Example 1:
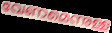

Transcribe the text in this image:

വേണമെന്നുള്ള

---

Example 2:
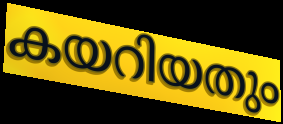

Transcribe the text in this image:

കയറിയതും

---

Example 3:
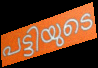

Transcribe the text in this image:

പട്ടിയുടെ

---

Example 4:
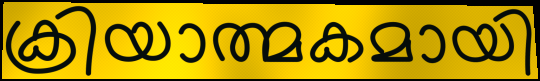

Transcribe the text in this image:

ക്രിയാത്മകമായി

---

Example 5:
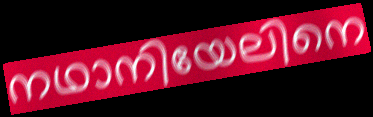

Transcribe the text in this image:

നഥാനിയേലിനെ